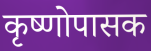
कृष्णोपासक